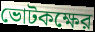
ভোটকক্ষের